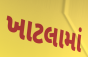
ખાટલામાં